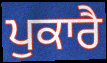
ਪੁਕਾਰੈ